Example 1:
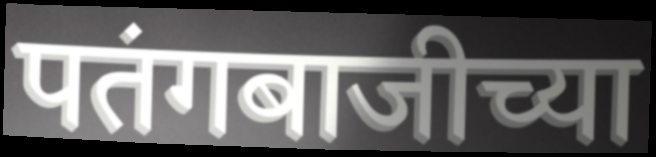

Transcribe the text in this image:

पतंगबाजीच्या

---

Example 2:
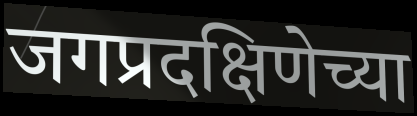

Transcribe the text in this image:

जगप्रदक्षिणेच्या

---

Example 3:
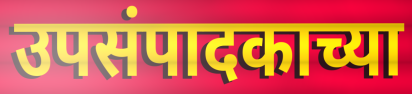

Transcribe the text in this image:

उपसंपादकाच्या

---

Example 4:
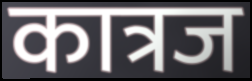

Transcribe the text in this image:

कात्रज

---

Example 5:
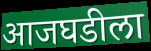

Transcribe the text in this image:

आजघडीला